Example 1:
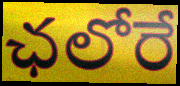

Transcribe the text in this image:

ఛలోరే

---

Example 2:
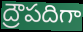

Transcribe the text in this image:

ద్రౌపదిగా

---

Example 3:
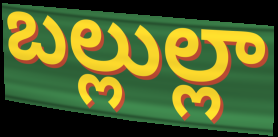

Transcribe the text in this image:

బల్లుల్లా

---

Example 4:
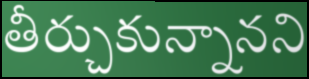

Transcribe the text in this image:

తీర్చుకున్నానని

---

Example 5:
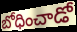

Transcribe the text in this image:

బోధించాడో